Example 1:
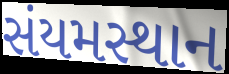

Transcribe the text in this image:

સંયમસ્થાન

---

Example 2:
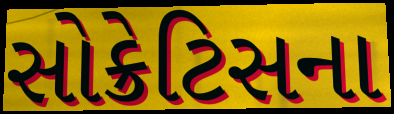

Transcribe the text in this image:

સોક્રેટિસના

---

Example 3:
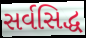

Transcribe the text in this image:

સર્વસિદ્ધ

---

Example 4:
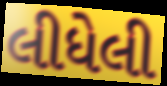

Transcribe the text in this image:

લીધેલી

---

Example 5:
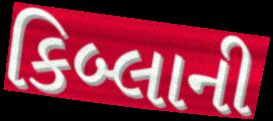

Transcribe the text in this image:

કિબ્લાની